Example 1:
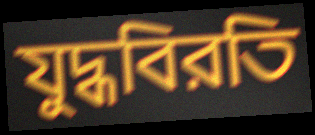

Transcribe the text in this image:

যুদ্ধবিরতি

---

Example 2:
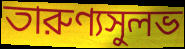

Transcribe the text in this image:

তারুণ্যসুলভ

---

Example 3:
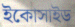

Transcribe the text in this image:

ইকোসাইড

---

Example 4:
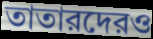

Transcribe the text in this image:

তাতারদেরও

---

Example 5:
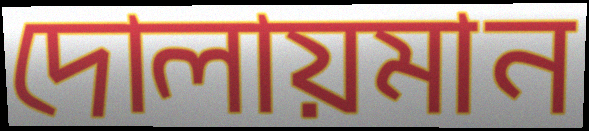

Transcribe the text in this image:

দোলায়মান